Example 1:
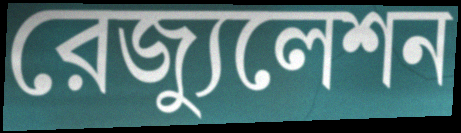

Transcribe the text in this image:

রেজ্যুলেশন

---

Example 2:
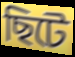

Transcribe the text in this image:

ছিটে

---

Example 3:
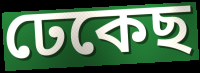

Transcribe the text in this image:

ঢেকেছ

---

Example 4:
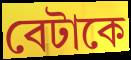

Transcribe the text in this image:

বেটাকে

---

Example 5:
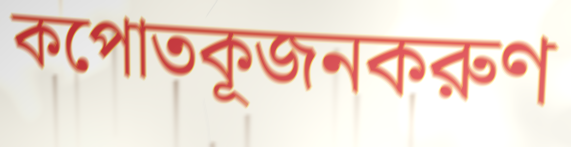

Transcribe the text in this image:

কপোতকূজনকরুণ